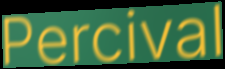
Percival